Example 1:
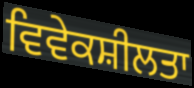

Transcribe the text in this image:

ਵਿਵੇਕਸ਼ੀਲਤਾ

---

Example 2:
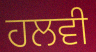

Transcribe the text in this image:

ਹਲਵੀ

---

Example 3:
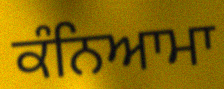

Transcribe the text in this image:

ਕੰਨਿਆਮਾ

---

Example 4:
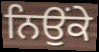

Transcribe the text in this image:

ਨਿਉਂਕੇ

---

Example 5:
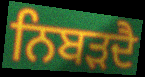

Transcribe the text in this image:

ਨਿਬੜਦੈ